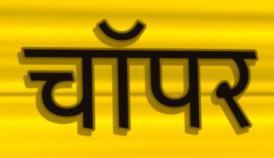
चॉपर